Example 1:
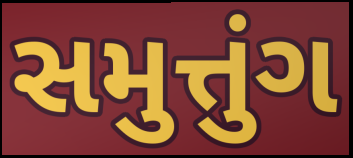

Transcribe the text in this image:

સમુત્તુંગ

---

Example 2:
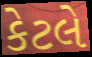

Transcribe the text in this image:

કેટલે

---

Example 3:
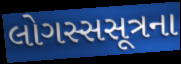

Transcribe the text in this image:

લોગસ્સસૂત્રના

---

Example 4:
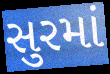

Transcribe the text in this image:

સુરમાં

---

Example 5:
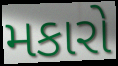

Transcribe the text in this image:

મકારો